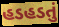
હડહડતું